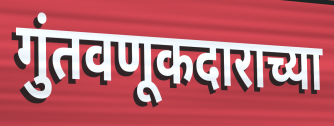
गुंतवणूकदाराच्या